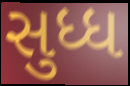
સુધ્ધ